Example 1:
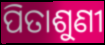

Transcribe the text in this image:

ପିତାଶୁଣୀ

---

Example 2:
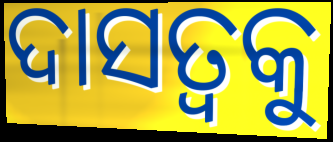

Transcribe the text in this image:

ଦାସତ୍ୱକୁ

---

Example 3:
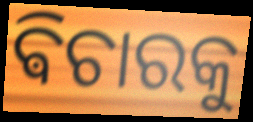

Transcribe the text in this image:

ଵିଚାରକୁ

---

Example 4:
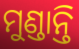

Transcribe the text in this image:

ମୁଣ୍ଡାନ୍ତି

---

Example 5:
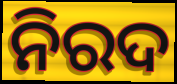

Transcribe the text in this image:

ନିରଦ